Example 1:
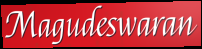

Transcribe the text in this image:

Magudeswaran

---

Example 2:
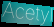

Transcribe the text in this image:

Acetyl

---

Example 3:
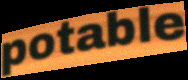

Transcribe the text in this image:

potable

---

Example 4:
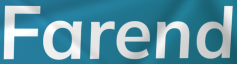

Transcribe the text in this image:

Farend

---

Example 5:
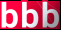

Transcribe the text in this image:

bbb